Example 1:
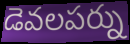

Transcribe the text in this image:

డెవలపర్ను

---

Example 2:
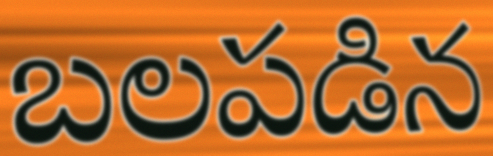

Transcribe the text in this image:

బలపడిన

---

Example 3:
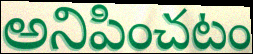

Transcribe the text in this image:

అనిపించటం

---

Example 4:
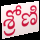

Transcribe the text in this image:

శ్రోణి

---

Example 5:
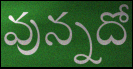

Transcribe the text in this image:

వున్నదో